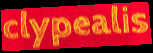
clypealis